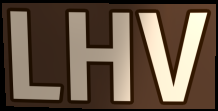
LHV